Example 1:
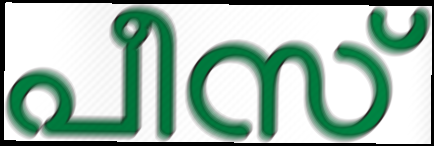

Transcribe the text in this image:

പീസ്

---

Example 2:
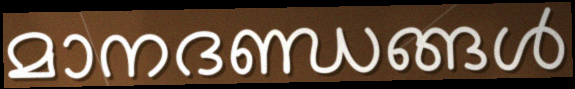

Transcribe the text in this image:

മാനദണ്ഡങ്ങൾ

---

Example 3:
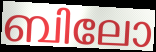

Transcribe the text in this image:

ബിലോ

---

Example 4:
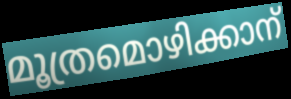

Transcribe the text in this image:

മൂത്രമൊഴിക്കാന്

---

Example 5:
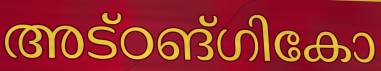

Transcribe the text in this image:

അട്ഠങ്ഗികോ